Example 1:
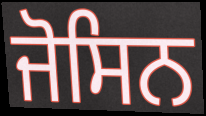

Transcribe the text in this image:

ਜੋਸਿਨ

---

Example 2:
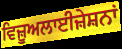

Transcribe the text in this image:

ਵਿਜ਼ੂਅਲਾਈਜ਼ੇਸ਼ਨਾਂ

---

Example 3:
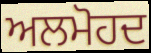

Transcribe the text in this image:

ਅਲਮੋਹਦ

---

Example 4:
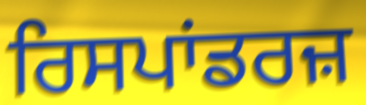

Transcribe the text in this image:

ਰਿਸਪਾਂਡਰਜ਼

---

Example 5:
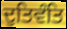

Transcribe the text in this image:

ਦੁਤਿਵੰਤਿ